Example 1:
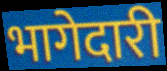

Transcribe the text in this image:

भागेदारी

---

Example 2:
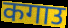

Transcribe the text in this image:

कगाउ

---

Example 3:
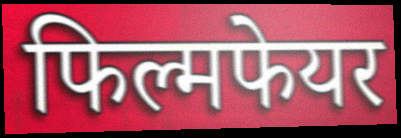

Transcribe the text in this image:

फिल्मफेयर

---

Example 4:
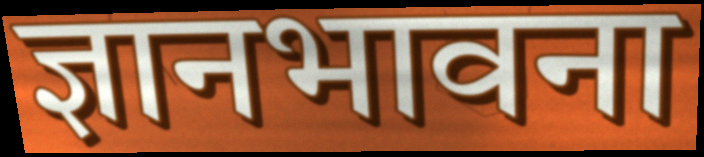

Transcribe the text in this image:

ज्ञानभावना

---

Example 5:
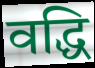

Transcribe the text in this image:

वद्धि